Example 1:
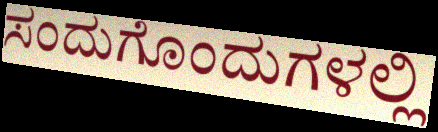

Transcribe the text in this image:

ಸಂದುಗೊಂದುಗಳಲ್ಲಿ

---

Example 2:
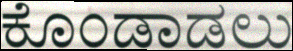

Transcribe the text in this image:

ಕೊಂಡಾಡಲು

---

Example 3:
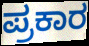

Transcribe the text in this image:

ಪ್ರಕಾರ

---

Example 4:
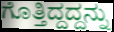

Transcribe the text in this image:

ಗೊತ್ತಿದ್ದದ್ದನ್ನು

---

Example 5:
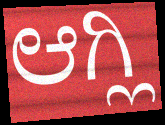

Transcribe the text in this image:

ಆಗ್ಲಿ